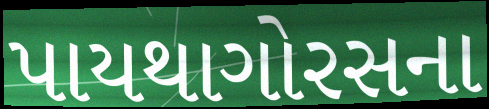
પાયથાગોરસના